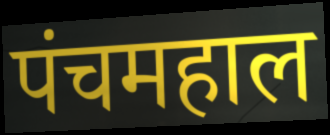
पंचमहाल